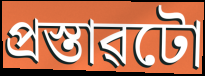
প্ৰস্তাৱটো